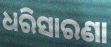
ଧରିସାରଣା